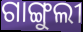
ଗାଙ୍ଗୁଲୀ